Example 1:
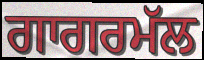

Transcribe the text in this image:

ਗਾਗਰਮੱਲ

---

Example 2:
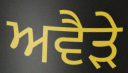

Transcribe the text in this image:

ਅਵੈੜੇ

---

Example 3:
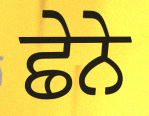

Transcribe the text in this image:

ਛੇਨੇ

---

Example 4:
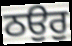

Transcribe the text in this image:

ਠਉਰੁ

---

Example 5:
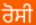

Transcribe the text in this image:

ਰੋਸੀ